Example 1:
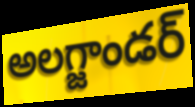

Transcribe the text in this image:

అలగ్జాండర్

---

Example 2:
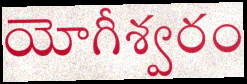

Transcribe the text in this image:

యోగీశ్వరం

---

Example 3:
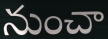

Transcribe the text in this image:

నుంచా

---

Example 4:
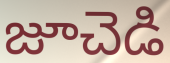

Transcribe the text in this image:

జూచెడి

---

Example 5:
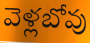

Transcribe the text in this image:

వెళ్లబోవు